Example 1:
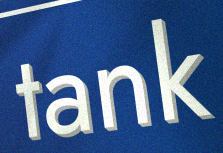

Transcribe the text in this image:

tank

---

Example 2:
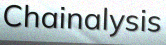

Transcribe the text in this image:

Chainalysis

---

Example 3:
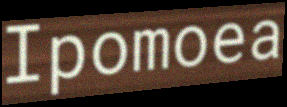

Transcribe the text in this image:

Ipomoea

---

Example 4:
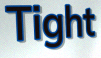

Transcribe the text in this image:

Tight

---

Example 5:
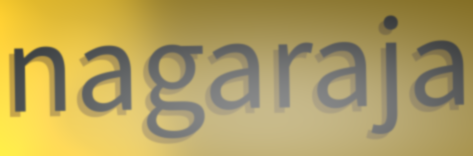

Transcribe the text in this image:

nagaraja